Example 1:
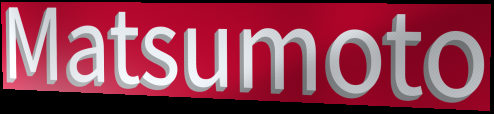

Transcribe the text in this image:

Matsumoto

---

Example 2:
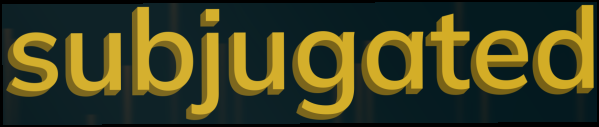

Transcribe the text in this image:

subjugated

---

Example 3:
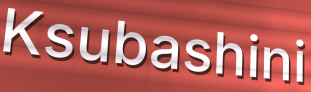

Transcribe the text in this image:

Ksubashini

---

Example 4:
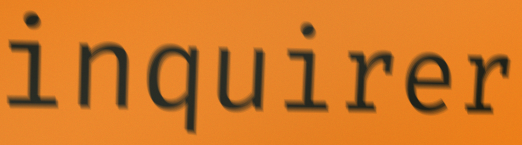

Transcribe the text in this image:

inquirer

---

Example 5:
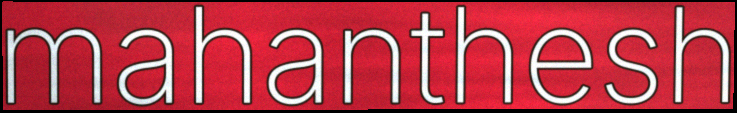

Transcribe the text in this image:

mahanthesh